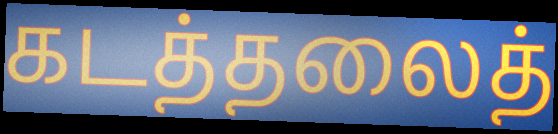
கடத்தலைத்